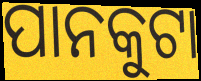
ପାନକୁଟା